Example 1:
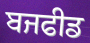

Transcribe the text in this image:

ਬਜਫੀਡ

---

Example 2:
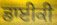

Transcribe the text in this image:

ਡਾਈਕੀ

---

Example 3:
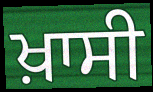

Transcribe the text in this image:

ਖ਼ਾਸੀ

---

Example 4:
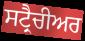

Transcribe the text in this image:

ਸਟ੍ਰੈਚੀਅਰ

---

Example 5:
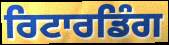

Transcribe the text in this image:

ਰਿਟਾਰਡਿੰਗ